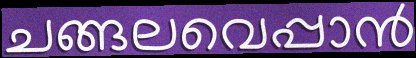
ചങ്ങലവെപ്പാൻ